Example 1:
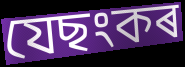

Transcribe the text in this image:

যেছংকৰ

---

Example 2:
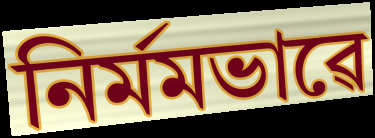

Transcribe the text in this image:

নিৰ্মমভাৱে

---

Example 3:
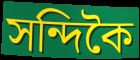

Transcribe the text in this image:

সন্দিকৈ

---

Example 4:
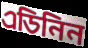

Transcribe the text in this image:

এডিনিন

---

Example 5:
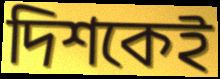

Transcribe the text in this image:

দিশকেই